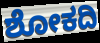
ಶೋಕದಿ